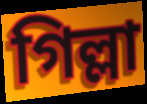
গিল্লা